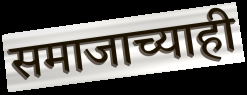
समाजाच्याही